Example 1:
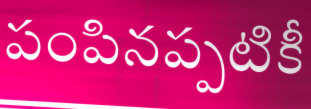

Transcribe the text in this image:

పంపినప్పటికీ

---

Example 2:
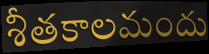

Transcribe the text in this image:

శీతకాలమందు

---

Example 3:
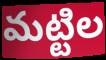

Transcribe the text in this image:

మట్టిల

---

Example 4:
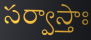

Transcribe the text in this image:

సర్వాస్తాః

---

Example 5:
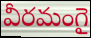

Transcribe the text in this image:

వీరమంగై